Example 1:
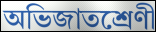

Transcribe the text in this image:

অভিজাতশ্রেণী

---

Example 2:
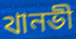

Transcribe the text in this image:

থানভী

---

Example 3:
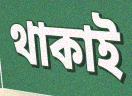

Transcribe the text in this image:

থাকাই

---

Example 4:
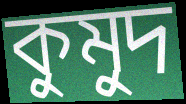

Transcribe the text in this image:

কুমুদ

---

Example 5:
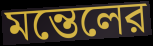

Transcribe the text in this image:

মন্তেলের